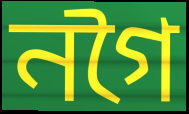
নগৈ